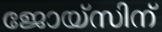
ജോയ്സിന്